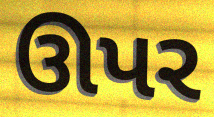
ઊપર